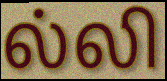
ல்லி